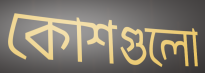
কোশগুলো